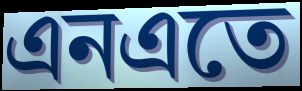
এনএতে